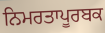
ਨਿਮਰਤਾਪੂਰਬਕ